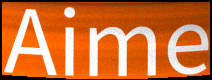
Aime